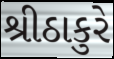
શ્રીઠાકુરે